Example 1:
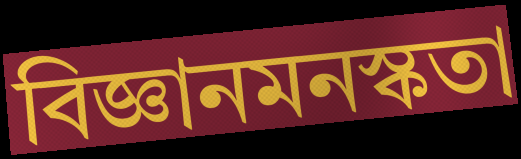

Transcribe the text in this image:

বিজ্ঞানমনস্কতা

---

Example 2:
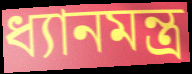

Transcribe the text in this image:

ধ্যানমন্ত্র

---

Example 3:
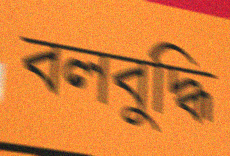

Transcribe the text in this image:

বলবুদ্ধি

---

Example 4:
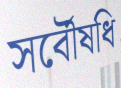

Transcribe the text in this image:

সর্বৌষধি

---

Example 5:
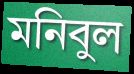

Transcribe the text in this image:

মনিবুল